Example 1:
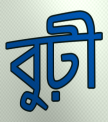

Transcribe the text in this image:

বুঢ়ী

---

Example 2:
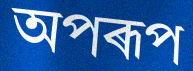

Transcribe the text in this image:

অপৰূপ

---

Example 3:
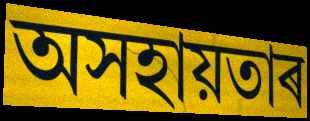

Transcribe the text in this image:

অসহায়তাৰ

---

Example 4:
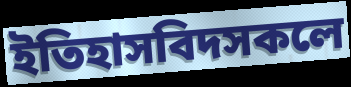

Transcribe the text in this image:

ইতিহাসবিদসকলে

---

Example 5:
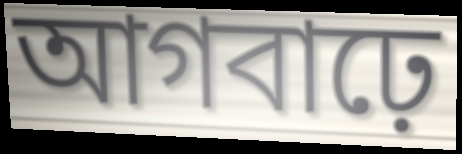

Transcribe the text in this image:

আগবাঢ়ে